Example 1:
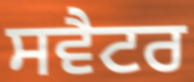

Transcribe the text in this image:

ਸਵੈਟਰ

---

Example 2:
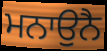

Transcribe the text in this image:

ਮਨਾਉਨੈ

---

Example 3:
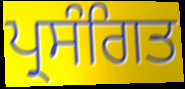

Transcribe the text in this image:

ਪ੍ਰਸੰਗਿਤ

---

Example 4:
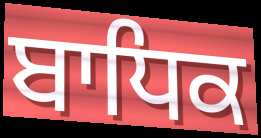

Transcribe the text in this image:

ਬਾਧਿਕ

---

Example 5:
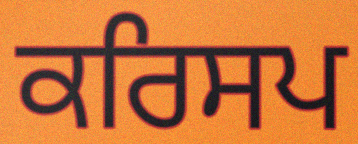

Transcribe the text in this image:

ਕਰਿਸਪ